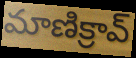
మాణిక్రావ్